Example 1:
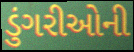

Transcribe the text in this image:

ડુંગરીઓની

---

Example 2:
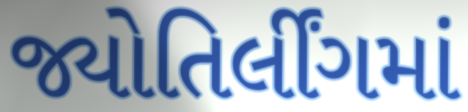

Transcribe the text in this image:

જ્યોતિર્લીંગમાં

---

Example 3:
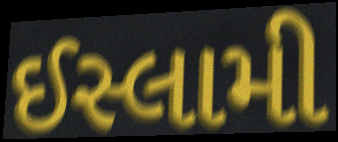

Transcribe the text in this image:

ઈસ્લામી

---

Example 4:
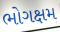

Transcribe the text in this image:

ભોગક્ષમ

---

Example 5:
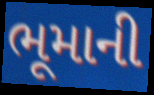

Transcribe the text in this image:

ભૂમાની